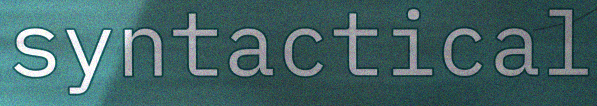
syntactical